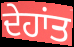
ਦੇਹਾਂਤ